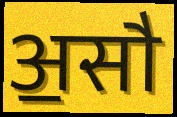
अ॒सौ